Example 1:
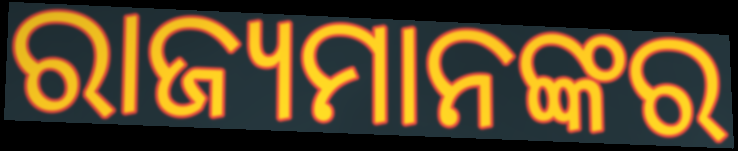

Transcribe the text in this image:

ରାଜ୍ୟମାନଙ୍କର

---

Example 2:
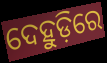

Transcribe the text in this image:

ଦେହୁଡ଼ିରେ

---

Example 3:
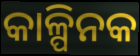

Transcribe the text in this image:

କାଳ୍ପିନକ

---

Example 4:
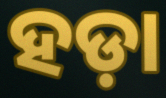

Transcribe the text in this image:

ହଡ଼ା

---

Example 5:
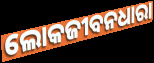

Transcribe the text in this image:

ଲୋକଜୀବନଧାରା